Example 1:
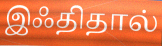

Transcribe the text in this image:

இஃதிதால்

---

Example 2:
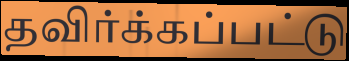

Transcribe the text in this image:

தவிர்க்கப்பட்டு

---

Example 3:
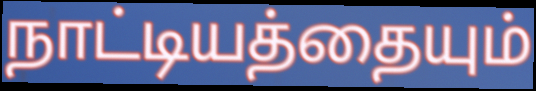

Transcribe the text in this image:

நாட்டியத்தையும்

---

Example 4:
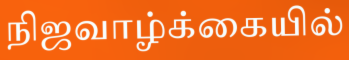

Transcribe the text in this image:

நிஜவாழ்க்கையில்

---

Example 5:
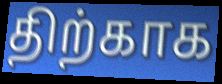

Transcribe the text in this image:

திற்காக